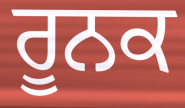
ਰੂਨਕ